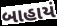
બાહાયં